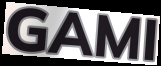
GAMI